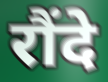
रौंदे